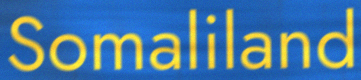
Somaliland